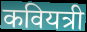
कवियत्री